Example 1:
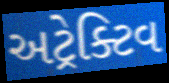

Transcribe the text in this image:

અટ્રેક્ટિવ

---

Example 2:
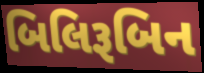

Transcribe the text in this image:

બિલિરૂબિન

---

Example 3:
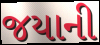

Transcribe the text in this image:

જયાની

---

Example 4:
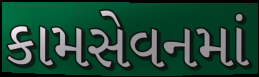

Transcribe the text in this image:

કામસેવનમાં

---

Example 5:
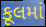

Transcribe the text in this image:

કૂલમાં